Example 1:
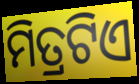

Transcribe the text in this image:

ମିତ୍ରଟିଏ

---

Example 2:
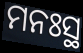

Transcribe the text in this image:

ମନଃସ୍ଥ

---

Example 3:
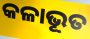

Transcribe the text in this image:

କଳାଭୂତ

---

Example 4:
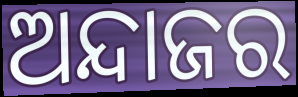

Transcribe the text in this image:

ଅନ୍ଦାଜର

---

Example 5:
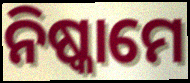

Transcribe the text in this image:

ନିଷ୍କାମେ